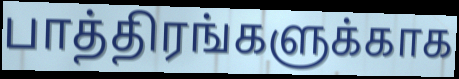
பாத்திரங்களுக்காக